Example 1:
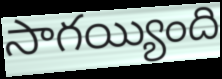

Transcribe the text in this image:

సాగయ్యింది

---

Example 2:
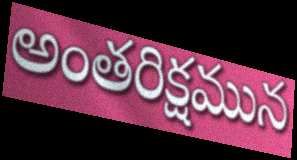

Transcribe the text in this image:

అంతరిక్షమున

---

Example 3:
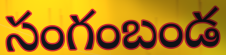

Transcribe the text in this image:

సంగంబండ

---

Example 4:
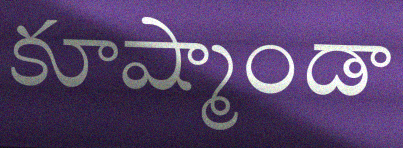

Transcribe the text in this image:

కూష్మాండా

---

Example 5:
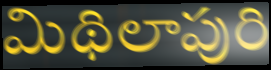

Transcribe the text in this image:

మిథిలాపురి